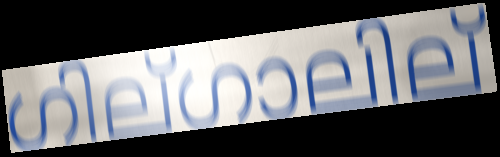
ഗില്ഗാലില്